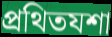
প্ৰথিতযশা